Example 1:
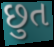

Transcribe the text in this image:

છુત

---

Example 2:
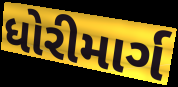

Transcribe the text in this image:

ધોરીમાર્ગ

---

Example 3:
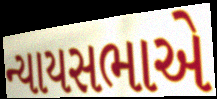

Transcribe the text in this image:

ન્યાયસભાએ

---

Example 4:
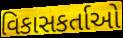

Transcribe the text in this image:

વિકાસકર્તાઓ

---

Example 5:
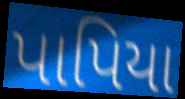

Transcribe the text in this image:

પાપિયા